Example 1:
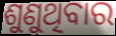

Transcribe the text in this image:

ଶୁଣୁଥିବାର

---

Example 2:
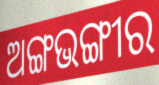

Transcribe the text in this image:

ଅଙ୍ଗଭଙ୍ଗୀର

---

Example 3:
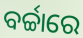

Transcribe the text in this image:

ବର୍ଚ୍ଚାରେ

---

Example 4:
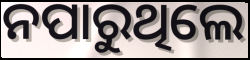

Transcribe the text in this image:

ନପାରୁଥିଲେ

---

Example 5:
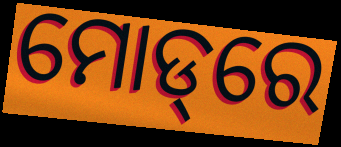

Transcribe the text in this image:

ମୋଡ୍‌ରେ